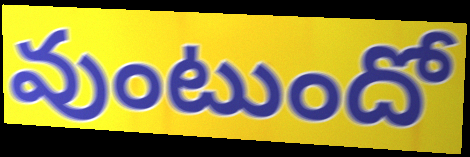
వుంటుందో